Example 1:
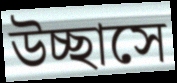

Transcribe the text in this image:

উচ্ছাসে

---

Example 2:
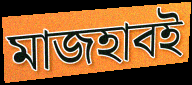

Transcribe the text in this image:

মাজহাবই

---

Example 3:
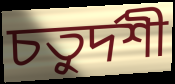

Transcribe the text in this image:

চতুর্দশী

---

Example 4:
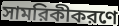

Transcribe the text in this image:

সামরিকীকরণে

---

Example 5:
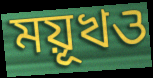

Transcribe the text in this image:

ময়ূখও